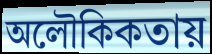
অলৌকিকতায়